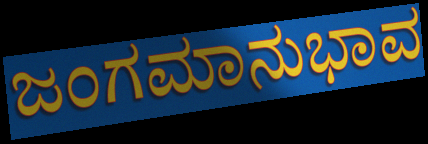
ಜಂಗಮಾನುಭಾವ